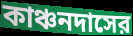
কাঞ্চনদাসের